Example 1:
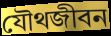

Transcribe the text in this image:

যৌথজীবন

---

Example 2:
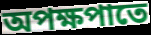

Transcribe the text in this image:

অপক্ষপাতে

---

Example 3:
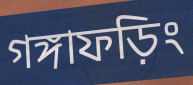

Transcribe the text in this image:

গঙ্গাফড়িং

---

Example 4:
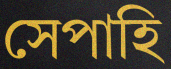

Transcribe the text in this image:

সেপাহি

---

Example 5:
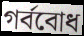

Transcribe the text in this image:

গর্ববোধ